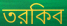
তরকিব